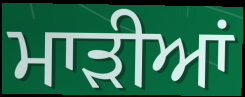
ਮਾੜੀਆਂ